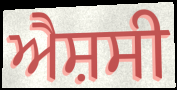
ਐਸ਼ਸੀ